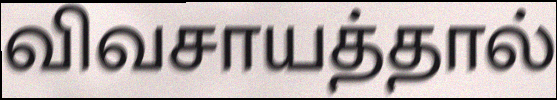
விவசாயத்தால்